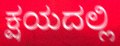
ಕ್ಷಯದಲ್ಲಿ